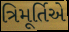
ત્રિમૂર્તિએ